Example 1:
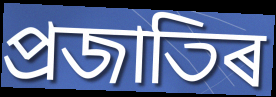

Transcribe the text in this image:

প্ৰজাতিৰ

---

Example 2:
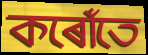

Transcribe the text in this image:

কৰোঁতে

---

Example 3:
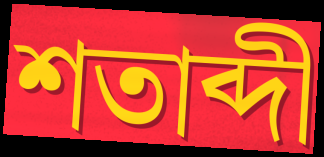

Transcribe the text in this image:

শতাব্দী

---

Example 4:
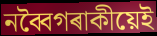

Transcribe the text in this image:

নব্বৈগৰাকীয়েই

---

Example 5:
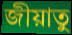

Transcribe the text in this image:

জীয়াতু